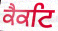
ਕੈਕਟਿ